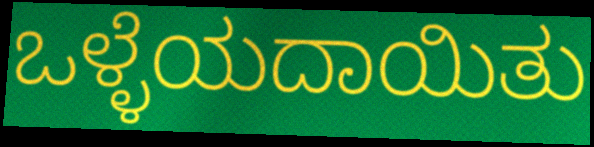
ಒಳ್ಳೆಯದಾಯಿತು